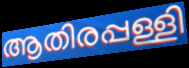
ആതിരപ്പള്ളി